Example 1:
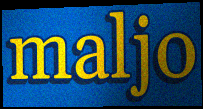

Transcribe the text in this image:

maljo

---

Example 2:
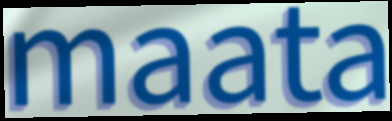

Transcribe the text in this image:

maata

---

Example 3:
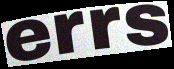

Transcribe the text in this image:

errs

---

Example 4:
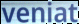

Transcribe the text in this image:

veniat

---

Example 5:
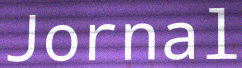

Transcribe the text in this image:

Jornal